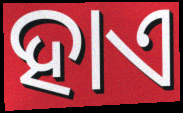
ହାଏ